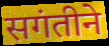
सगंतीने